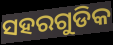
ସହରଗୁଡିକ